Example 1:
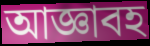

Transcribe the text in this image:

আজ্ঞাবহ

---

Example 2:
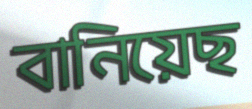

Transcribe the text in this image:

বানিয়েছ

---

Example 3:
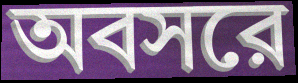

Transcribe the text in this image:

অবসরে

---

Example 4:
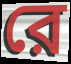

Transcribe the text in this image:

রে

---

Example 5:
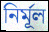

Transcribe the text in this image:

নির্মূল